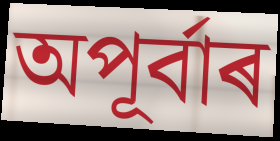
অপূৰ্বাৰ